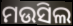
ମଉସିଲ